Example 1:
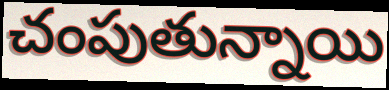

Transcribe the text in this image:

చంపుతున్నాయి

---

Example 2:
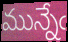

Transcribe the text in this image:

మున్నేఁ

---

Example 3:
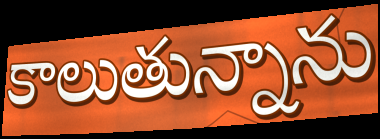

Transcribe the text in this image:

కాలుతున్నాను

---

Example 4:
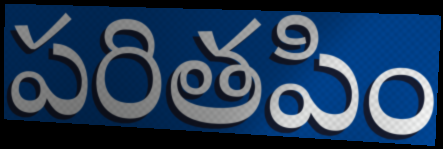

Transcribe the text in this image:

పరితపిం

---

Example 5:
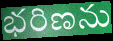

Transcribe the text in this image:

భరిణను